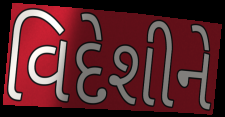
વિદેશીને